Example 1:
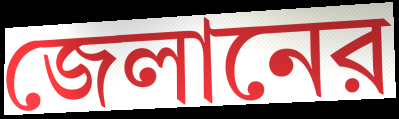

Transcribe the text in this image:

জেলানের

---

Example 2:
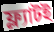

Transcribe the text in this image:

ফ্ল্যাটই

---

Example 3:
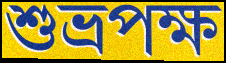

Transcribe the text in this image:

শুভ্রপক্ষ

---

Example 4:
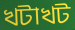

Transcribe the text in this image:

খটাখট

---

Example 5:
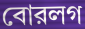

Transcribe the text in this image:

বোরলগ